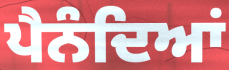
ਪੈਨੰਦਿਆਂ